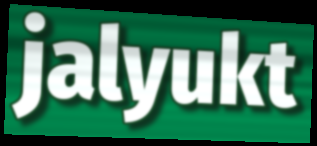
jalyukt